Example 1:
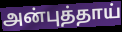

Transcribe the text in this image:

அன்புத்தாய்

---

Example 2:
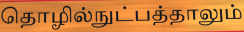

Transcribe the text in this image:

தொழில்நுட்பத்தாலும்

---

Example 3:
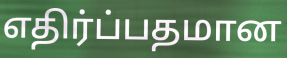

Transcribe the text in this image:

எதிர்ப்பதமான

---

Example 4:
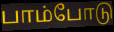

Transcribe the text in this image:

பாம்போடு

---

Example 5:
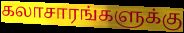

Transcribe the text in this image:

கலாசாரங்களுக்கு